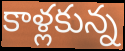
కాళ్లకున్న